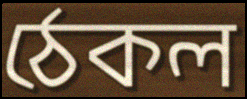
ঠেকল